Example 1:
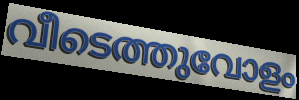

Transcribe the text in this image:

വീടെത്തുവോളം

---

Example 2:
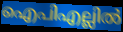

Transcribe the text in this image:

ഐപിഎല്ലിൽ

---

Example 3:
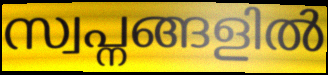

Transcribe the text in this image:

സ്വപ്നങ്ങളിൽ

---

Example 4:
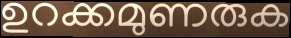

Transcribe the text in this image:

ഉറക്കമുണരുക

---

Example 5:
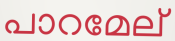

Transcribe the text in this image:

പാറമേല്